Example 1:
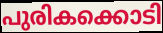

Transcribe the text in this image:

പുരികക്കൊടി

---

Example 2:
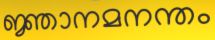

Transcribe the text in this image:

ജ്ഞാനമനന്തം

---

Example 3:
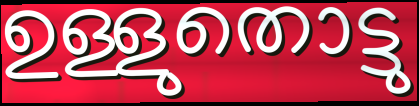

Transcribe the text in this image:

ഉള്ളുതൊട്ടു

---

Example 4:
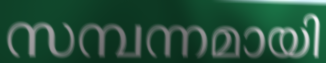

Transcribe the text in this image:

സമ്പന്നമായി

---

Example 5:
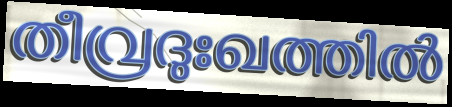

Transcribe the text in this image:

തീവ്രദുഃഖത്തിൽ